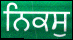
ਨਿਕਸੁ